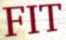
FIT